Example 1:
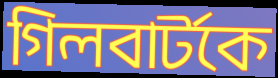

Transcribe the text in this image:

গিলবার্টকে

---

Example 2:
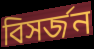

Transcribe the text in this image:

বিসর্জন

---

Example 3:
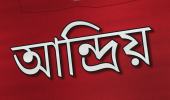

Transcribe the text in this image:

আন্দ্রিয়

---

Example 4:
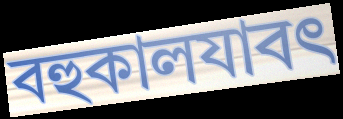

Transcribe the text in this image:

বহুকালযাবৎ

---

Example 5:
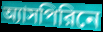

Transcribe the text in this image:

অ্যাসপিরিনে